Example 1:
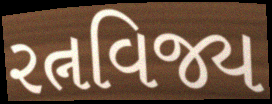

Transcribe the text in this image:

રત્નવિજ્ય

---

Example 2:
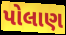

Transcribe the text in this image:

પોલાણ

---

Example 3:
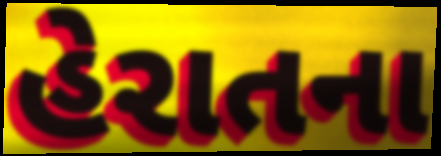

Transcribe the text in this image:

હેરાતના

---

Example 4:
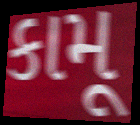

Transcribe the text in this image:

કામૂ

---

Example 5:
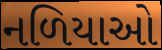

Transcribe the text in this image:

નળિયાઓ